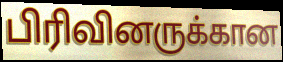
பிரிவினருக்கான